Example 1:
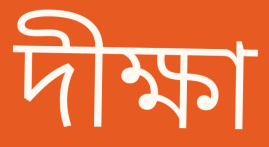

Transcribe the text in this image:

দীক্ষা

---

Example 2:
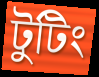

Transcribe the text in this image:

টুটিং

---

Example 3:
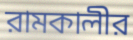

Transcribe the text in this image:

রামকালীর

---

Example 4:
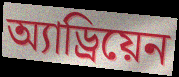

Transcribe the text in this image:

অ্যাড্রিয়েন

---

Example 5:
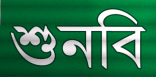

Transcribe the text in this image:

শুনবি